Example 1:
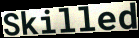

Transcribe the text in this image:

Skilled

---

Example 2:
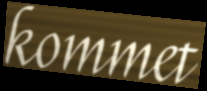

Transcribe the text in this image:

kommet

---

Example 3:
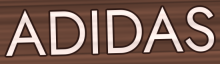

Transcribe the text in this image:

ADIDAS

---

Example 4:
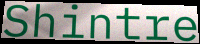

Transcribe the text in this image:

Shintre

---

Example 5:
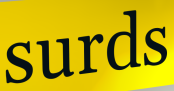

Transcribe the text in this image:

surds